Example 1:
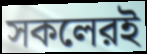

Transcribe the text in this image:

সকলেরই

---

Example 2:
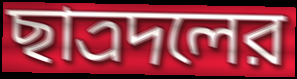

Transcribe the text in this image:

ছাত্রদলের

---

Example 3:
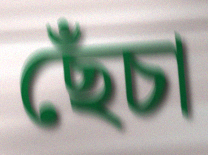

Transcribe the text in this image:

ছেঁচা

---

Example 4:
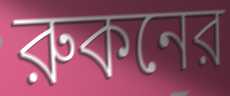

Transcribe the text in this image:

রুকনের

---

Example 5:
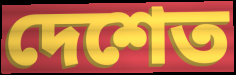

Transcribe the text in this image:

দেশেত